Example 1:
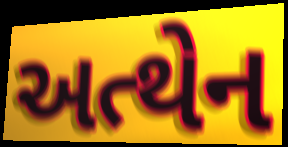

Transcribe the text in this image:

અત્થેન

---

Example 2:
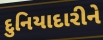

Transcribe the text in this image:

દુનિયાદારીને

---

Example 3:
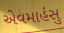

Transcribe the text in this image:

એવમાહંસુ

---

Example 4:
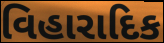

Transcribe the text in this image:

વિહારાદિક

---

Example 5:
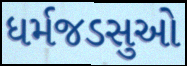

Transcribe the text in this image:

ધર્મજડસુઓ